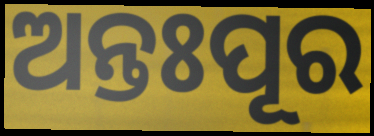
ଅନ୍ତଃପୂର